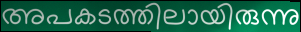
അപകടത്തിലായിരുന്നു